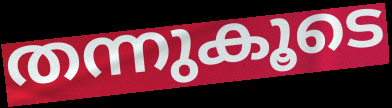
തന്നുകൂടെ